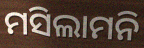
ମସିଲାମନି